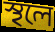
স্থলে